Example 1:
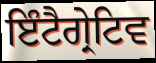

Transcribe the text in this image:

ਇੰਟੈਗ੍ਰੇਟਿਵ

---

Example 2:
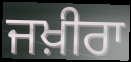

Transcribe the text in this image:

ਜਖ਼ੀਰਾ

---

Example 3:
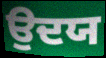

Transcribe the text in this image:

ਉਦਯ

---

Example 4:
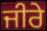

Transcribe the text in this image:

ਜੀਰੇ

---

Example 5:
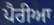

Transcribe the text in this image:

ਪੈਰੀਆ